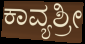
ಕಾವ್ಯಶ್ರೀ